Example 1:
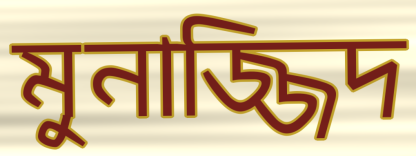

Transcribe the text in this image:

মুনাজ্জিদ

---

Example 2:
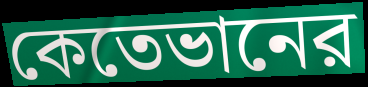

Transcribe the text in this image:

কেতেভানের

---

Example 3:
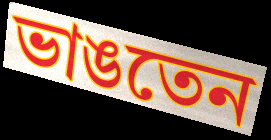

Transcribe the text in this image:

ভাঙতেন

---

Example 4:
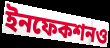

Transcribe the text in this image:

ইনফেকশনও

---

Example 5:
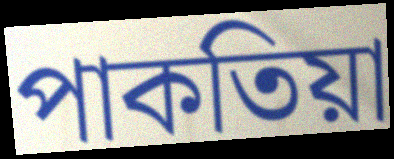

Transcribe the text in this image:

পাকতিয়া